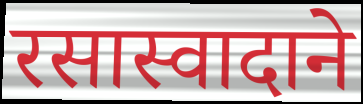
रसास्वादाने